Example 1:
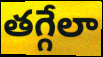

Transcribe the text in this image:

తగ్గేలా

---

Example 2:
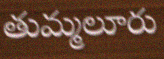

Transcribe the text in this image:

తుమ్మలూరు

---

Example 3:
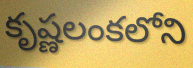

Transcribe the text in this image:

కృష్ణలంకలోని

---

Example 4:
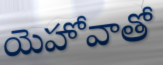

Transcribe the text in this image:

యెహోవాతో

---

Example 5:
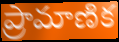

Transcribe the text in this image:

ప్రామాణిక